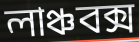
লাঞ্চবক্স